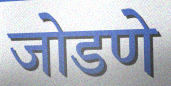
जोडणे